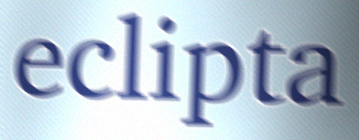
eclipta